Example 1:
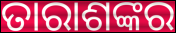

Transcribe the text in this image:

ତାରାଶଙ୍କର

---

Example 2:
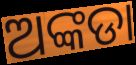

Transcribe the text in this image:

ଅଙ୍କଡା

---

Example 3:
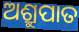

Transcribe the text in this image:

ଅଶ୍ରୁପାତ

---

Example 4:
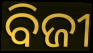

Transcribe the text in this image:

ବିଜୀ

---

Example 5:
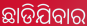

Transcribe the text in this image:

ଛାଡିଯିବାର